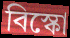
বিস্কো